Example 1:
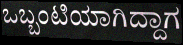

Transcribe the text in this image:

ಒಬ್ಬಂಟಿಯಾಗಿದ್ದಾಗ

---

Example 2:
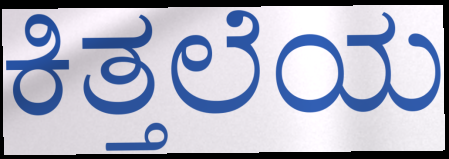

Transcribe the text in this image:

ಕಿತ್ತಲೆಯ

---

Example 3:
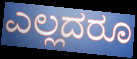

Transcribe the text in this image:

ಎಲ್ಲದರೂ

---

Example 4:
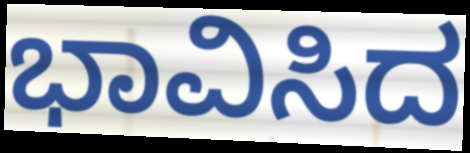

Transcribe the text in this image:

ಭಾವಿಸಿದ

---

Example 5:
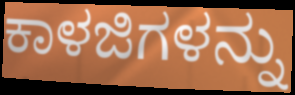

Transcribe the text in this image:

ಕಾಳಜಿಗಳನ್ನು